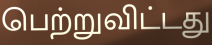
பெற்றுவிட்டது